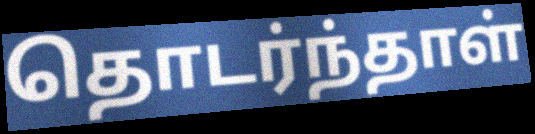
தொடர்ந்தாள்